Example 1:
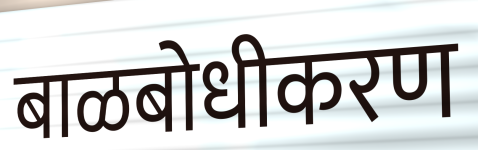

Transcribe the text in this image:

बाळबोधीकरण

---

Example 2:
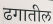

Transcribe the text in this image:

ढगातील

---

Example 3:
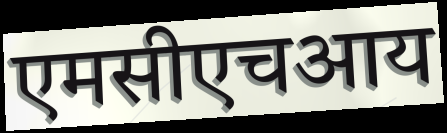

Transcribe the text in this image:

एमसीएचआय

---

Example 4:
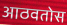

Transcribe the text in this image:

आठवतोस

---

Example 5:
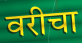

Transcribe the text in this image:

वरीचा